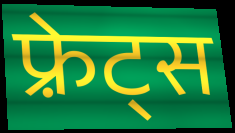
फ़्रेट्स